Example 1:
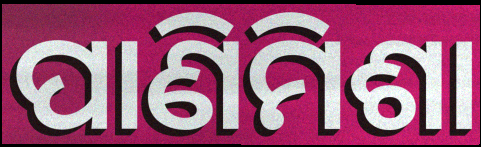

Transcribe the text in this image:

ପାଣିମିଶା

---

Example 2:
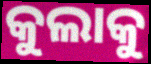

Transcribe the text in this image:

କୁଲାକୁ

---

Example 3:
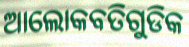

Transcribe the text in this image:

ଆଲୋକବତିଗୁଡିକ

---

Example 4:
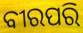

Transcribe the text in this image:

ବୀରପରି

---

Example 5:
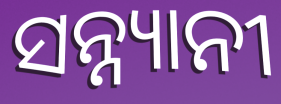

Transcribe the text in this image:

ସନ୍ନ୍ୟାନୀ